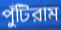
পুঁটিরাম